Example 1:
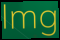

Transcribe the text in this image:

Img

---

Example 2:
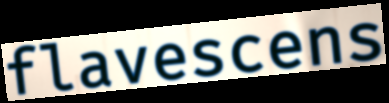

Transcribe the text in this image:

flavescens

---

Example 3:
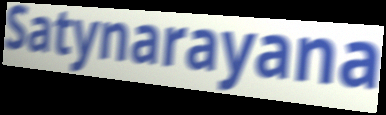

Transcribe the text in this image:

Satynarayana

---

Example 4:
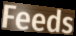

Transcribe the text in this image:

Feeds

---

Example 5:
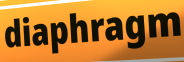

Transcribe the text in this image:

diaphragm